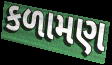
કળામણ